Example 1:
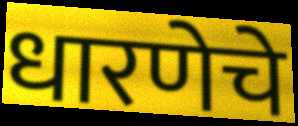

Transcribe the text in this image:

धारणेचे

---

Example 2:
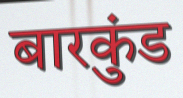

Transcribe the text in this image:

बारकुंड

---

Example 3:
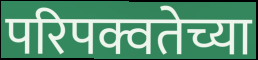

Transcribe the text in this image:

परिपक्वतेच्या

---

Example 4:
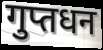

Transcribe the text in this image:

गुप्तधन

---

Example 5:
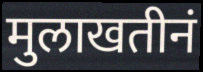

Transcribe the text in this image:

मुलाखतीनं